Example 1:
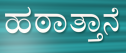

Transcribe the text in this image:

ಹಠಾತ್ತಾನೆ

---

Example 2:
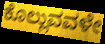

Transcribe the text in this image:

ಕೊಲ್ಲುವವಳೇ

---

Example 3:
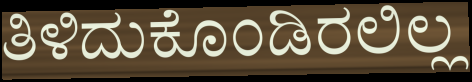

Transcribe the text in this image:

ತಿಳಿದುಕೊಂಡಿರಲಿಲ್ಲ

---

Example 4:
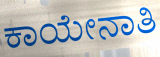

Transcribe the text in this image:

ಕಾಯೇನಾತಿ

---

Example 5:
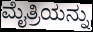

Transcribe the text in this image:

ಮೈತ್ರಿಯನ್ನು